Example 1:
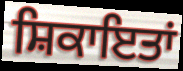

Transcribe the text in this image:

ਸ਼ਿਕਾਇਤਾਂ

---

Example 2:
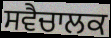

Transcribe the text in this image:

ਸਵੈਚਾਲਕ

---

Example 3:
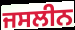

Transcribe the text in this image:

ਜਸਲੀਨ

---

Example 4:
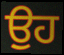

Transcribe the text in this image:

ਉੁਹ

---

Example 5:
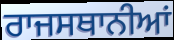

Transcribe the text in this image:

ਰਾਜਸਥਾਨੀਆਂ